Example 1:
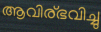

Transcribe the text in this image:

ആവിര്ഭവിച്ചു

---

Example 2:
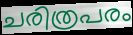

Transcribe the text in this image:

ചരിത്രപരം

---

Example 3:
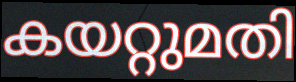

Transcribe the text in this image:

കയറ്റുമതി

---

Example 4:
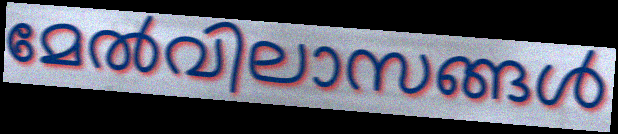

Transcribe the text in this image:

മേൽവിലാസങ്ങൾ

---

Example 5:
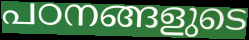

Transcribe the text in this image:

പഠനങ്ങളുടെ